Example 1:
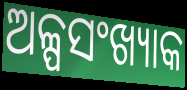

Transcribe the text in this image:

ଅଳ୍ପସଂଖ୍ୟାକ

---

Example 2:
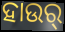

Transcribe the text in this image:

ହାଉର୍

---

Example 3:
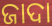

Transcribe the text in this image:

ଜାଦା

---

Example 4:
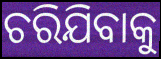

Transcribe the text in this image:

ଚରିଯିବାକୁ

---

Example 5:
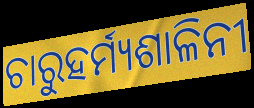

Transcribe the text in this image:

ଚାରୁହର୍ମ୍ୟଶାଳିନୀ